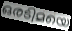
ഒരടിമയെ